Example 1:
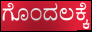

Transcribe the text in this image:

ಗೊಂದಲಕ್ಕೆ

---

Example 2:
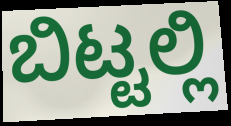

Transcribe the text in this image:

ಬಿಟ್ಟಲ್ಲಿ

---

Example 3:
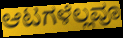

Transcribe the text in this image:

ಆಟಗಳೆಲ್ಲವೂ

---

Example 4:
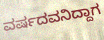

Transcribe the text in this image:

ವರ್ಷದವನಿದ್ದಾಗ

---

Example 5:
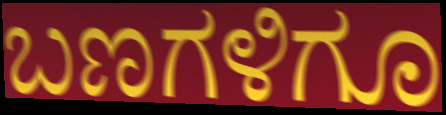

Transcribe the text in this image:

ಬಣಗಳಿಗೂ